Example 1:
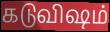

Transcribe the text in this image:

கடுவிஷம்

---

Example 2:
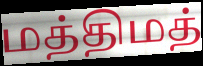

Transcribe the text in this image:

மத்திமத்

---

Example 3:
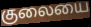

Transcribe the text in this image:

குலையை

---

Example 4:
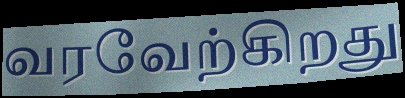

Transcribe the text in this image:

வரவேற்கிறது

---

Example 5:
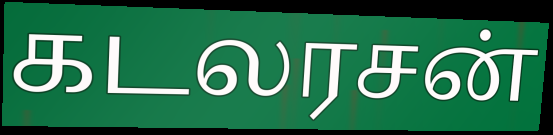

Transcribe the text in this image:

கடலரசன்